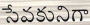
సేవకునిగా